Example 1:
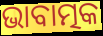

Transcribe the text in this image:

ଭାବାତ୍ମକ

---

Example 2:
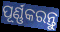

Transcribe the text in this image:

ପୂର୍ଣ୍ଣକରନ୍ତୁ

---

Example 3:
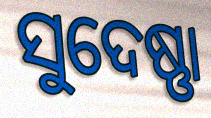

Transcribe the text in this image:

ସୁଦେଷ୍ଣା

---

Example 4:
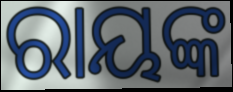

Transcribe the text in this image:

ରାୟଙ୍କ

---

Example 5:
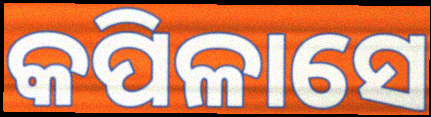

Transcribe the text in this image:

କପିଳାସେ